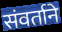
संवर्ताने